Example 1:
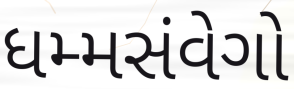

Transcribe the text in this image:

ધમ્મસંવેગો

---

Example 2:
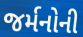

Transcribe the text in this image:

જર્મનોની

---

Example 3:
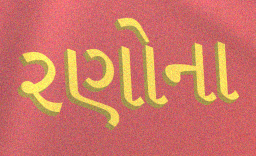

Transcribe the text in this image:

રણોના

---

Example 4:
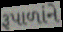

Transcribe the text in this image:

રૂપાળાંને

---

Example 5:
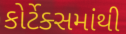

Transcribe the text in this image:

કોર્ટેક્સમાંથી